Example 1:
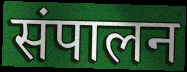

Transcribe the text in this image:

संपालन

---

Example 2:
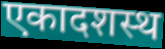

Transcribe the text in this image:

एकादशस्थ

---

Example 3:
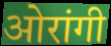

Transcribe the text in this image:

ओरांगी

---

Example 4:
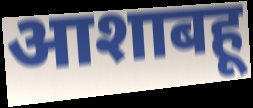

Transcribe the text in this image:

आशाबहू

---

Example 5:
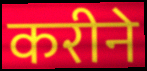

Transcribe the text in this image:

करीने